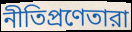
নীতিপ্রণেতারা